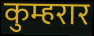
कुम्हरार